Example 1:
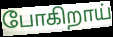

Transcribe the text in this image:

போகிறாய்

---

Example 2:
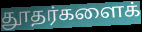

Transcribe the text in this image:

தூதர்களைக்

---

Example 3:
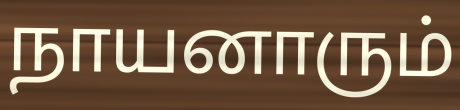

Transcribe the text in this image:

நாயனாரும்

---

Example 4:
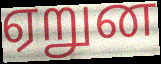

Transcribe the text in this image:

ஏறுன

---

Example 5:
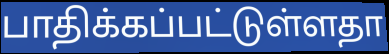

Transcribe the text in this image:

பாதிக்கப்பட்டுள்ளதா